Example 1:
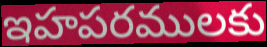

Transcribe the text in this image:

ఇహపరములకు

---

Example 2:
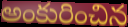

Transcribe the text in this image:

అంకురించిన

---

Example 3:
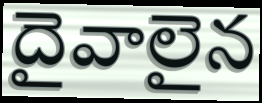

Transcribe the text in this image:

దైవాలైన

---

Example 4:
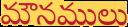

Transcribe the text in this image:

మౌనములు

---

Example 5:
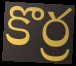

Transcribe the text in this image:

కొర్ర